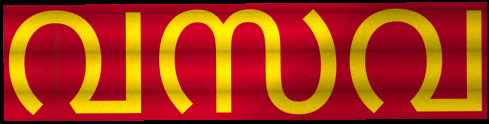
വസവ